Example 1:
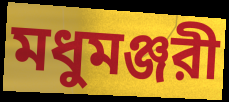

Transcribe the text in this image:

মধুমঞ্জরী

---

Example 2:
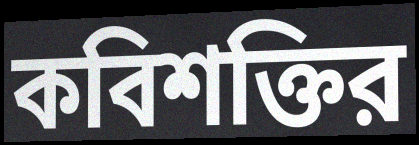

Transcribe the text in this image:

কবিশক্তির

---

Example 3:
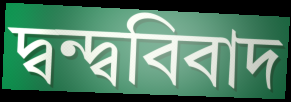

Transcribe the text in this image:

দ্বন্দ্ববিবাদ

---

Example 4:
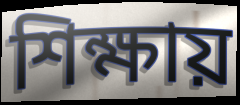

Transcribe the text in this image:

শিক্ষায়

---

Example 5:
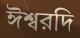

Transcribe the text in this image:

ঈশ্বরদি